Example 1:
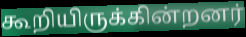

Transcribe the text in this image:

கூறியிருக்கின்றனர்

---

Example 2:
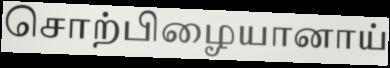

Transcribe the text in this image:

சொற்பிழையானாய்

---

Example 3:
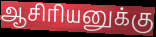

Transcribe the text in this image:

ஆசிரியனுக்கு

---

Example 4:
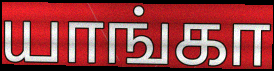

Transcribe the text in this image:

யாங்கா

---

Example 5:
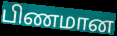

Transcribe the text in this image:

பிணமான